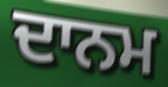
ਦਾਨਮ